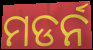
ମଡର୍ନ